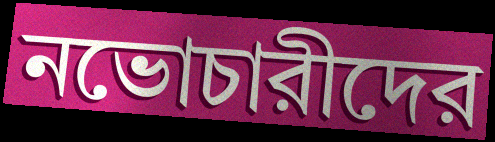
নভোচারীদের